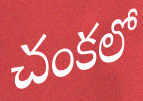
చంకలో